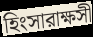
হিংসারাক্ষসী